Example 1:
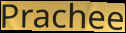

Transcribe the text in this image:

Prachee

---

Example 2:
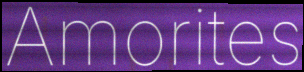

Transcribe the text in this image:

Amorites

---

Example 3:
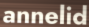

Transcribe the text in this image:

annelid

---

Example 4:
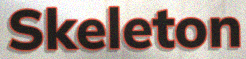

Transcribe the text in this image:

Skeleton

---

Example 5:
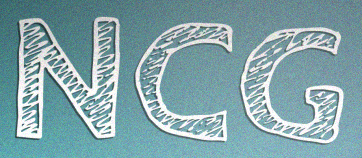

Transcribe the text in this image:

NCG